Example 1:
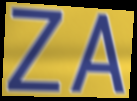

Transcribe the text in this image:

ZA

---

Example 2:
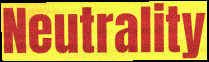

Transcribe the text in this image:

Neutrality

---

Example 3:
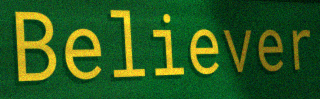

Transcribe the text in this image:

Believer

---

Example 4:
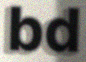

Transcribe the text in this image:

bd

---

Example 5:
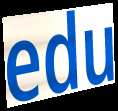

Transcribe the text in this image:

edu